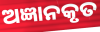
ଅଜ୍ଞାନକୃତ